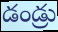
డండ్రు